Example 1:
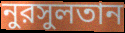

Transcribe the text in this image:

নুরসুলতান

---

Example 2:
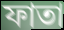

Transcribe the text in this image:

ফাতা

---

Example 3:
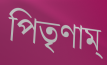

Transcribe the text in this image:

পিতৃণাম্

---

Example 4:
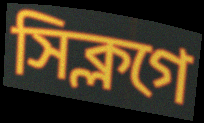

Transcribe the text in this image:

সিক্লগে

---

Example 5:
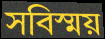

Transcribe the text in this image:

সবিস্ময়